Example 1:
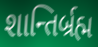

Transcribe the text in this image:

શાન્તિર્બ્રહ્મ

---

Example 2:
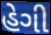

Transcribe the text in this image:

હેગી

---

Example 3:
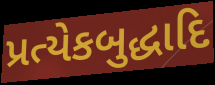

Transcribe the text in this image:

પ્રત્યેકબુદ્ધાદિ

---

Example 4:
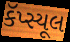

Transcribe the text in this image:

કૅપ્સ્યૂલ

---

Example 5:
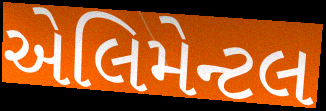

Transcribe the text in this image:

એલિમેન્ટલ